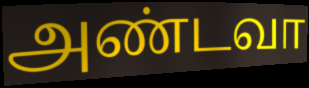
அண்டவா